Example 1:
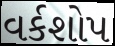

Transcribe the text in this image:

વર્કશોપ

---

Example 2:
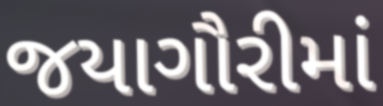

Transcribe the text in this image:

જયાગૌરીમાં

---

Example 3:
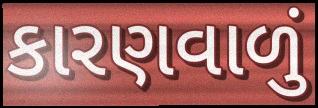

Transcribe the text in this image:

કારણવાળું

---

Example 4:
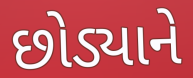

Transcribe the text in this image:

છોડ્યાને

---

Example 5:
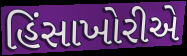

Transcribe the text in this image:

હિંસાખોરીએ